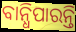
ବାନ୍ଧିପାରନ୍ତି